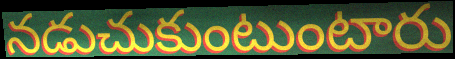
నడుచుకుంటుంటారు